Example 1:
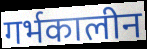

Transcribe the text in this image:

गर्भकालीन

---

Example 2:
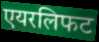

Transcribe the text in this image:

एयरलिफट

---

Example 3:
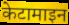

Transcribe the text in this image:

केटामाइन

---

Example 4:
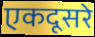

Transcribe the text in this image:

एकदूसरे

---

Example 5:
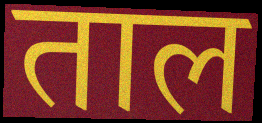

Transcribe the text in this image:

ताल